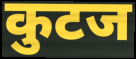
कुटज